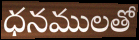
ధనములతో